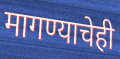
मागण्याचेही